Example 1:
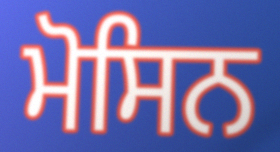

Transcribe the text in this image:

ਮੋਸਿਨ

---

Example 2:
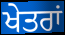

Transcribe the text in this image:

ਖੇਤਰਾਂ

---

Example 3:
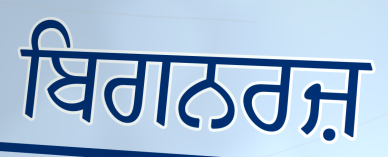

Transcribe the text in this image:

ਬਿਗਨਰਜ਼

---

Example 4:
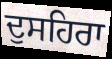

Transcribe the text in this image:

ਦੁਸਹਿਰਾ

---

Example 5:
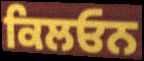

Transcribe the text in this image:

ਕਿਲਓਨ